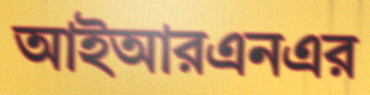
আইআরএনএর